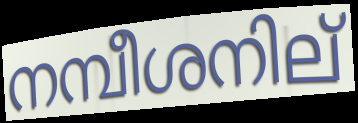
നമ്പീശനില്